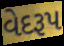
વેદરૂપ